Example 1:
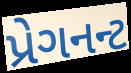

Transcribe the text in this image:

પ્રેગનન્ટ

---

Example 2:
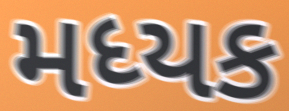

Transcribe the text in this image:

મધ્યક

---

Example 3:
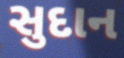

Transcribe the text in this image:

સુદાન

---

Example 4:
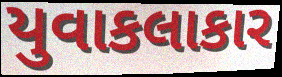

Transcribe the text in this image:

યુવાકલાકાર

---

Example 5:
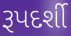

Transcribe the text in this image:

રૂપદર્શી